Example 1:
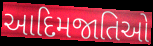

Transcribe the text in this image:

આદિમજાતિઓ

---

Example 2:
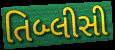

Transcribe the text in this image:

તિબ્લીસી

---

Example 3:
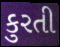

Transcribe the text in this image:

કુરતી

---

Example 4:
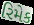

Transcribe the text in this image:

રિમેક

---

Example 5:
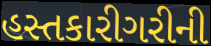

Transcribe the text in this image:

હસ્તકારીગરીની